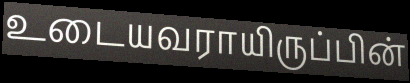
உடையவராயிருப்பின்